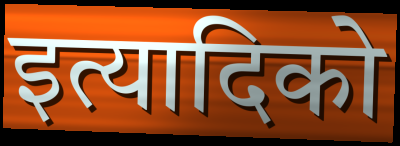
इत्यादिको